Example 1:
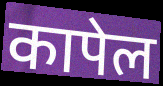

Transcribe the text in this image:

कापेल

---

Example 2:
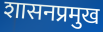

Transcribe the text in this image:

शासनप्रमुख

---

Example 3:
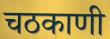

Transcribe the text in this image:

चठकाणी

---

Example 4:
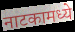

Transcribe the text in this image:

नाटकामध्ये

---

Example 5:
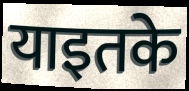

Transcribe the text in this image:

याइतके